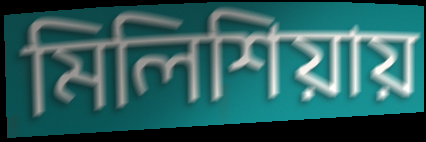
মিলিশিয়ায়